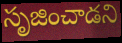
సృజించాడని